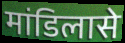
मांडिलासे